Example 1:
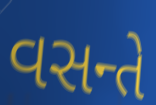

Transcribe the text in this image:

વસન્તે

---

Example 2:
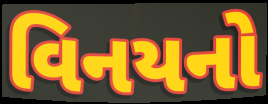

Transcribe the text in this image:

વિનયનો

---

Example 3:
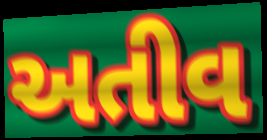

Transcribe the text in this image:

અતીવ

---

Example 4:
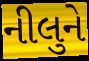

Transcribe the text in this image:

નીલુને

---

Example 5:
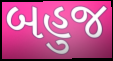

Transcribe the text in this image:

બહુજ